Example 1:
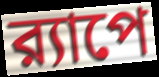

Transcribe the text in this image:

র‍্যাপে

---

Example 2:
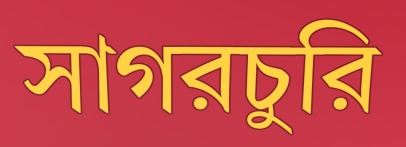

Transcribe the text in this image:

সাগরচুরি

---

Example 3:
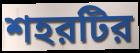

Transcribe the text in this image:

শহরটির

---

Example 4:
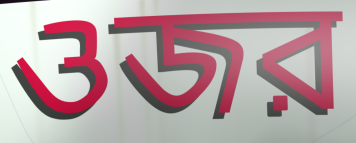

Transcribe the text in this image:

ওজর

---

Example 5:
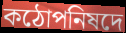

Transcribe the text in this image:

কঠোপনিষদে